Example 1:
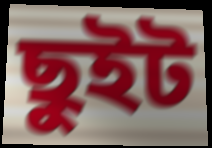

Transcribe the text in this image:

ছুইট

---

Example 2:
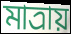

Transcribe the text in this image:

মাত্রায়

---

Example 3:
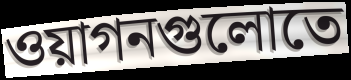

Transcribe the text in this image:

ওয়াগনগুলোতে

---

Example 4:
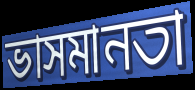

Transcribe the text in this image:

ভাসমানতা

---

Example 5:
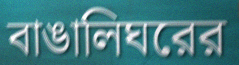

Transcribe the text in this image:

বাঙালিঘরের